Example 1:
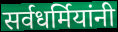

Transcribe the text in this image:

सर्वधर्मियांनी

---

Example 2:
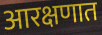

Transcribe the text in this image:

आरक्षणात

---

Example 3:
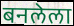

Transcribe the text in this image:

बनलेला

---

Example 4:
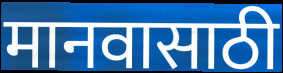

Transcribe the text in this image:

मानवासाठी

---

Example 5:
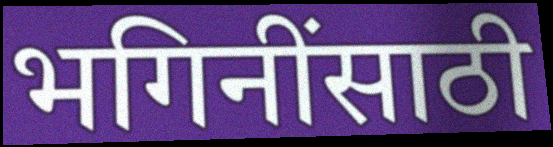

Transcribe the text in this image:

भगिनींसाठी